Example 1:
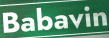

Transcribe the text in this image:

Babavin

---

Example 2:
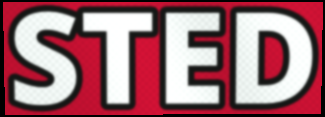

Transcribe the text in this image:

STED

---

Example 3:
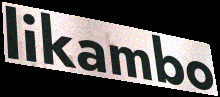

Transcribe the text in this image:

likambo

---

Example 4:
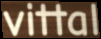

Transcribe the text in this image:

vittal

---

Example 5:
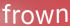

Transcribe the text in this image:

frown